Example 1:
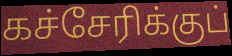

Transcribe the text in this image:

கச்சேரிக்குப்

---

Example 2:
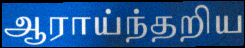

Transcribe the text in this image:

ஆராய்ந்தறிய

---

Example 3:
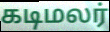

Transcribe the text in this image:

கடிமலர்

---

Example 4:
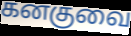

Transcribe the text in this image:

கனகுவை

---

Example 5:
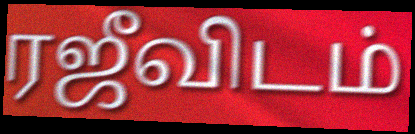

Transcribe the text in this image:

ரஜீவிடம்